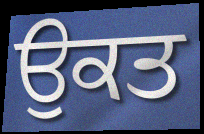
ਉਕਤ